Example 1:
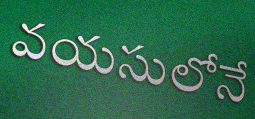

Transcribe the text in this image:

వయసులోనే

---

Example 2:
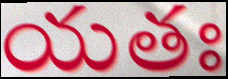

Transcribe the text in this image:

యతః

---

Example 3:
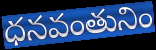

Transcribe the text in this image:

ధనవంతునిం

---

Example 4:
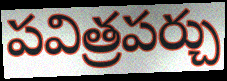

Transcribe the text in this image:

పవిత్రపర్చు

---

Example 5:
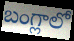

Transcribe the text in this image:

బంగ్లాలో